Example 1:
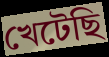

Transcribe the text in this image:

খেটেছি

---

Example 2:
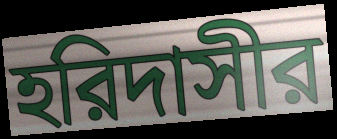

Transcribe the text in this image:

হরিদাসীর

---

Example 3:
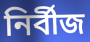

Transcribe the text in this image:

নির্বীজ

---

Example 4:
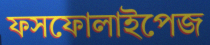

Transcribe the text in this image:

ফসফোলাইপেজ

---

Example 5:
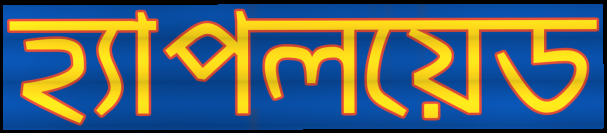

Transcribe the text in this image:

হ্যাপলয়েড